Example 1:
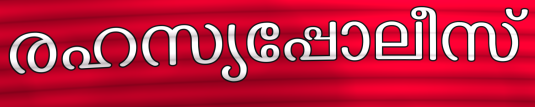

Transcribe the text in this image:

രഹസ്യപ്പോലീസ്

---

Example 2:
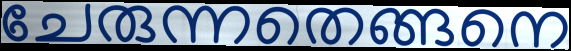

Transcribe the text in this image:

ചേരുന്നതെങ്ങനെ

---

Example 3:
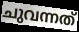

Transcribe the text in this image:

ചുവന്നത്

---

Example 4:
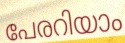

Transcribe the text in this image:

പേരറിയാം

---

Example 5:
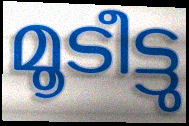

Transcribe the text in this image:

മൂടീട്ടു